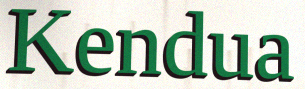
Kendua